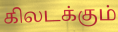
கிலடக்கும்